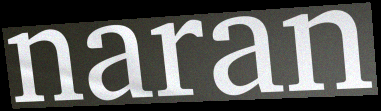
naran